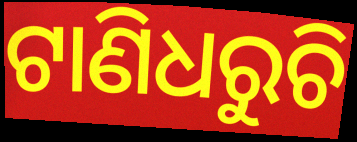
ଟାଣିଧରୁଚି